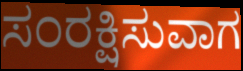
ಸಂರಕ್ಷಿಸುವಾಗ